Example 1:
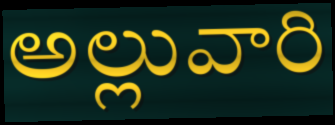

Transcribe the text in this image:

అల్లువారి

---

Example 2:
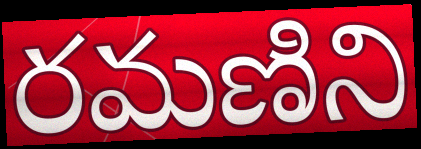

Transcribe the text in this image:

రమణిని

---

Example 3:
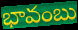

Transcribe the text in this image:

భావంబు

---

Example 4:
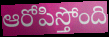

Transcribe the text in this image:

ఆరోపిస్తోంది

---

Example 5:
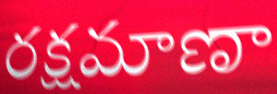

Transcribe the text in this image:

రక్షమాణా